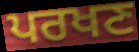
ਪਰਖਣ